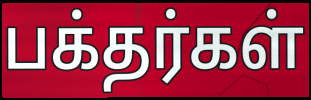
பக்தர்கள்